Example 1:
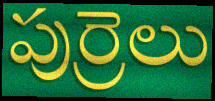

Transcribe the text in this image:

పుర్రెలు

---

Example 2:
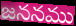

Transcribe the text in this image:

జననము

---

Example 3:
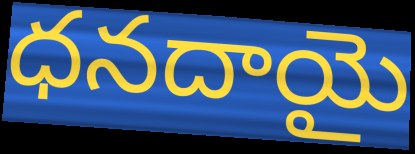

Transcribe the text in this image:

ధనదాయై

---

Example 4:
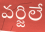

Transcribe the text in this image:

వర్జిలే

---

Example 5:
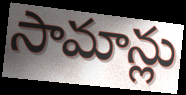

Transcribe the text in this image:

సామాన్లు